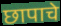
छापाचे